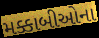
મક્કાબીઓના